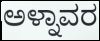
ಅಳ್ನಾವರ